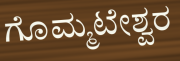
ಗೊಮ್ಮಟೇಶ್ವರ